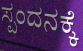
ಸ್ಪಂದನಕ್ಕೆ